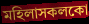
মহিলাসকলকো